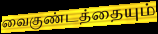
வைகுண்டத்தையும்